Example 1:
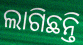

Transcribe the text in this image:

ଲାଗିଛନ୍ତି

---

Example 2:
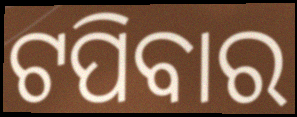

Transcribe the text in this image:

ଟପିବାର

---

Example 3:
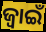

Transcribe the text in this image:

ଜ୍ବାଇଁ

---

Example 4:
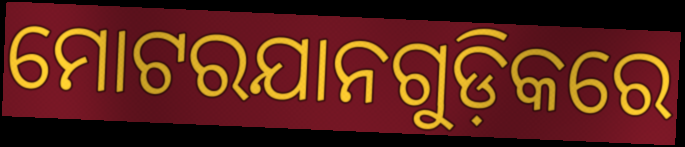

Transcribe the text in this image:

ମୋଟରଯାନଗୁଡ଼ିକରେ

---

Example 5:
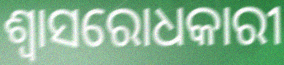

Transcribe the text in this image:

ଶ୍ୱାସରୋଧକାରୀ